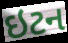
ઇટન